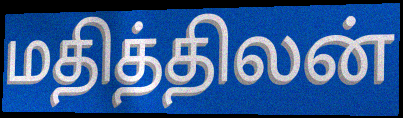
மதித்திலன்